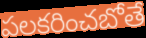
పలకరించబోతే